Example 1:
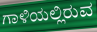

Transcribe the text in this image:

ಗಾಳಿಯಲ್ಲಿರುವ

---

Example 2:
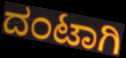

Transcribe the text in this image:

ದಂಟಾಗಿ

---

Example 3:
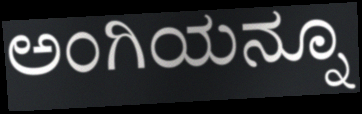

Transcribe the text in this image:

ಅಂಗಿಯನ್ನೂ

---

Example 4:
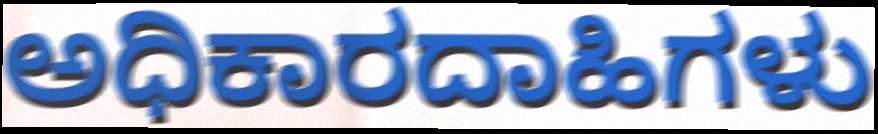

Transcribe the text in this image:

ಅಧಿಕಾರದಾಹಿಗಳು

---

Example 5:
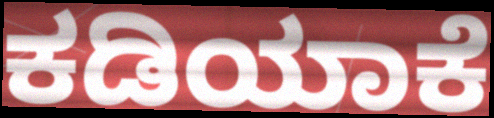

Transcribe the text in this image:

ಕಡಿಯಾಕೆ